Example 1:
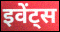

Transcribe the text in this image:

इवेंट्स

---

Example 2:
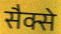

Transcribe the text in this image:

सैक्से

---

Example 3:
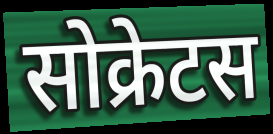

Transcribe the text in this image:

सोक्रेटस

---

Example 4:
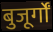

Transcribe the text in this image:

बुजूर्गों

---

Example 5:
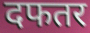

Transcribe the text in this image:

दफतर